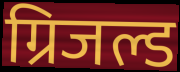
ग्रिजल्ड